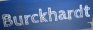
Burckhardt